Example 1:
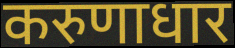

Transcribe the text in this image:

करुणाधार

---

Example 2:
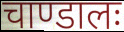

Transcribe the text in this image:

चाण्डालः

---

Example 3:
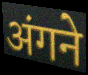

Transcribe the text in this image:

अंगने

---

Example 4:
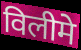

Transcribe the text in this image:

विलीमे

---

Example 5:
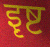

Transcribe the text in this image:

इृष्ट